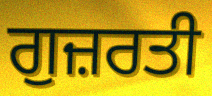
ਗੁਜ਼ਰਤੀ